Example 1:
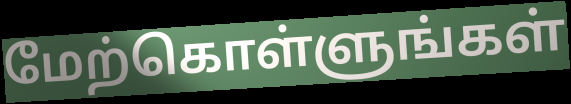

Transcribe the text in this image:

மேற்கொள்ளுங்கள்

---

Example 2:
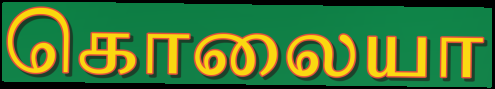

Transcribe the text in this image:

கொலையா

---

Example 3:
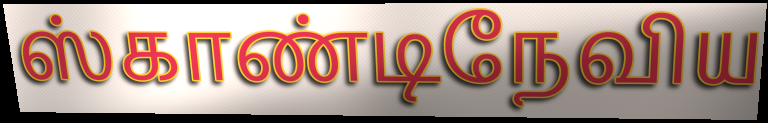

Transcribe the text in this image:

ஸ்காண்டிநேவிய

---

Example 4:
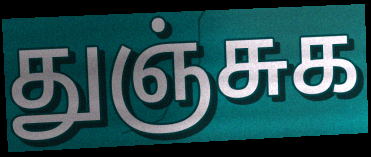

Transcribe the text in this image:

துஞ்சுக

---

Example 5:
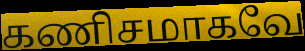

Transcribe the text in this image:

கணிசமாகவே